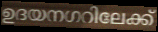
ഉദയനഗറിലേക്ക്